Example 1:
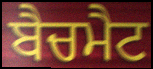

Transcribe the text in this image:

ਬੈਚਮੈਟ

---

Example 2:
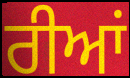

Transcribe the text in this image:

ਰੀਆਂ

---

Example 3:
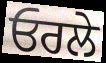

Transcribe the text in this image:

ਓਰਲੇ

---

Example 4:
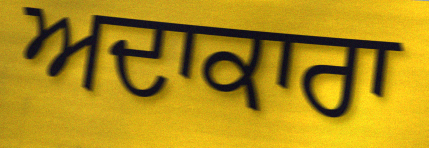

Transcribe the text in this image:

ਅਦਾਕਾਰਾ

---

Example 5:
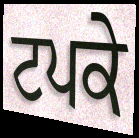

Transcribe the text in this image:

ਟਪਕੇ